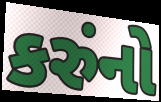
કરુંનો